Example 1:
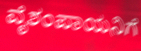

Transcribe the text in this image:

ವೈಶಂಪಾಯನಿಗೆ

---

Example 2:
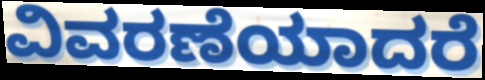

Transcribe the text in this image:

ವಿವರಣೆಯಾದರೆ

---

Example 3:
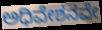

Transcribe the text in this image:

ಅಧಿವೇಶನವೇ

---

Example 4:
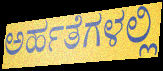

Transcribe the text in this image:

ಅರ್ಹತೆಗಳಲ್ಲಿ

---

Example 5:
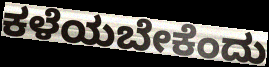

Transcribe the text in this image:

ಕಳೆಯಬೇಕೆಂದು